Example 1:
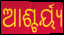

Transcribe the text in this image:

ଆଶ୍ଚର୍ୟ୍ଯ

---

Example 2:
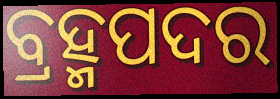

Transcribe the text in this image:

ବ୍ରହ୍ମପଦର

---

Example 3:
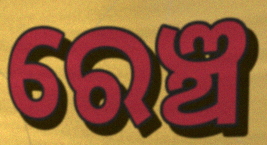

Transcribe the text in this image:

ରେଞ୍ଚ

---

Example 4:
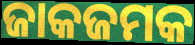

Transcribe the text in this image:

ଜାକଜମକ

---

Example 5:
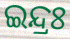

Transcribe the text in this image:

ଇନ୍ଦ୍ରଃ